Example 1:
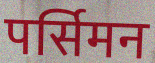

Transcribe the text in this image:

पर्सिमन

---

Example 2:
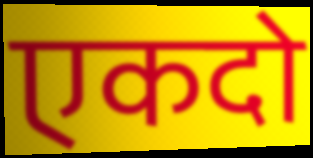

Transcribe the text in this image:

एकदो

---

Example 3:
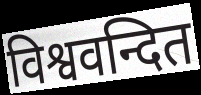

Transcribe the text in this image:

विश्ववन्दित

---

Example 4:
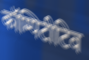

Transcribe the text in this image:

कॉम्पिटीटिव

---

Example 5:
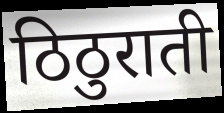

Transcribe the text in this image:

ठिठुराती